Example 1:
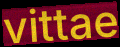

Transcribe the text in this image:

vittae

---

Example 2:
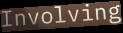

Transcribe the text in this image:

Involving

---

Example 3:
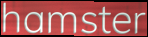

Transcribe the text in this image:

hamster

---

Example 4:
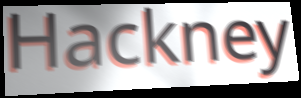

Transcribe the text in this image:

Hackney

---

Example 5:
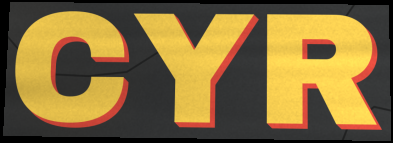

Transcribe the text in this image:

CYR